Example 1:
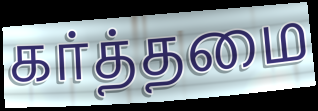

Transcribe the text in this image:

கர்த்தமை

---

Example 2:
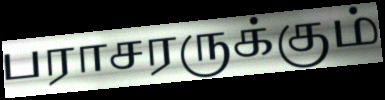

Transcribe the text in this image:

பராசரருக்கும்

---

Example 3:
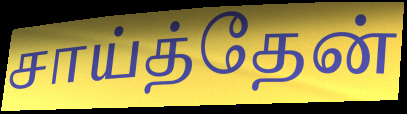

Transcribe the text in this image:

சாய்த்தேன்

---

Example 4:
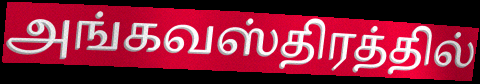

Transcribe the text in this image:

அங்கவஸ்திரத்தில்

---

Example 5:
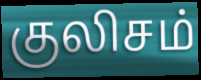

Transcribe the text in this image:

குலிசம்